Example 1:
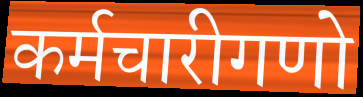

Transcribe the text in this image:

कर्मचारीगणो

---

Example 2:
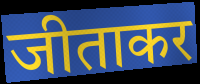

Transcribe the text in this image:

जीताकर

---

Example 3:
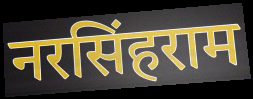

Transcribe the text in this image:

नरसिंहराम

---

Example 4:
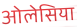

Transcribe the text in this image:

ओलेसिया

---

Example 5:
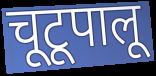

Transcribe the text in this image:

चूटूपालू